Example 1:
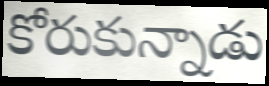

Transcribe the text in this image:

కోరుకున్నాడు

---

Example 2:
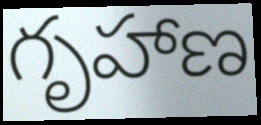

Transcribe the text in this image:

గృహాణ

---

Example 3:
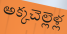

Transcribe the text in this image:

అక్కచెల్లెళ్ల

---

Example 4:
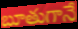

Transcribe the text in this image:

బూతుగానే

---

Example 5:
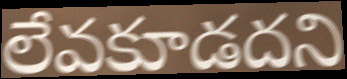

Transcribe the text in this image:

లేవకూడదని